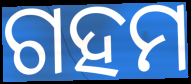
ଗହମ